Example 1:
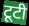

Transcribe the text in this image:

टूटी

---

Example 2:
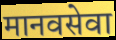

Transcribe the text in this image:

मानवसेवा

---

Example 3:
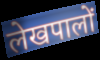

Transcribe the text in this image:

लेखपालों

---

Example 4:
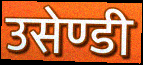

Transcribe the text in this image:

उसेण्डी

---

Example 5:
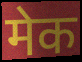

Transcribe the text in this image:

मेक